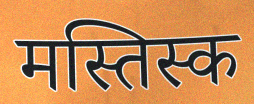
मस्तिस्क